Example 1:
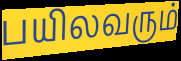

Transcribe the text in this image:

பயிலவரும்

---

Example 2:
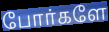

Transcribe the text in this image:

போர்களே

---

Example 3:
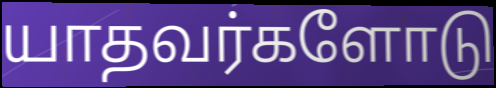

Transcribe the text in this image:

யாதவர்களோடு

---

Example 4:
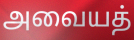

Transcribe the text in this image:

அவையத்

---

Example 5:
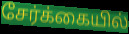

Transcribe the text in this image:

சேர்க்கையில்